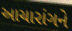
આચારાંગને